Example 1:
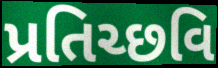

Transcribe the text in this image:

પ્રતિચ્છવિ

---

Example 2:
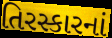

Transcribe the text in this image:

તિરસ્કારનાં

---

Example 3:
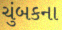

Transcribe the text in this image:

ચુંબકના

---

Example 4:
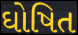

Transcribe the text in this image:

ઘોષિત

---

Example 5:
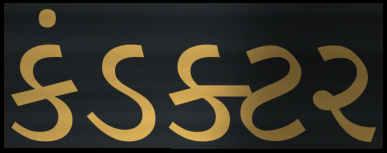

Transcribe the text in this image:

કંડક્ટર